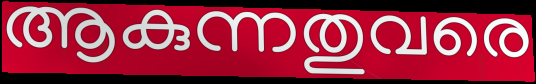
ആകുന്നതുവരെ